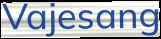
Vajesang